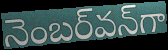
నెంబర్‌వన్‌గా